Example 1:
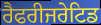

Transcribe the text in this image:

ਰੈਫਰੀਜਰੇਟਿਡ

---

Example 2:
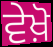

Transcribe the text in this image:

ਵੇਖ਼ੋ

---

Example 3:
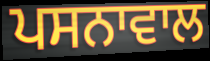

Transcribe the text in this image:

ਪਸਨਾਵਾਲ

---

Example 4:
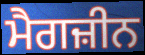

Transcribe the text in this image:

ਮੈਗਜ਼ੀਨ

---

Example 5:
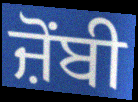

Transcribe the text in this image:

ਜ਼ੋਂਬੀ